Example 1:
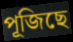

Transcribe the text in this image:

পূজিছে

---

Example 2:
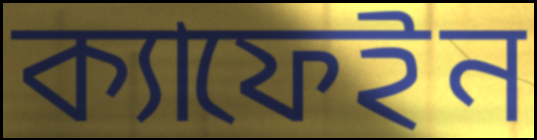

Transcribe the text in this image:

ক্যাফেইন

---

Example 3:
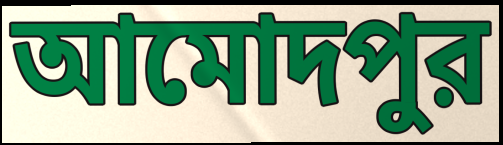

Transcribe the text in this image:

আমোদপুর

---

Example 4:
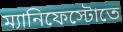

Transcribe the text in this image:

ম্যানিফেস্টোতে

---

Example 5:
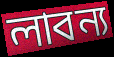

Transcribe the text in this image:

লাবন্য